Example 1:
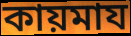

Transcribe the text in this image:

কায়মায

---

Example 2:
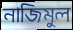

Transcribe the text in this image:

নাজিমুল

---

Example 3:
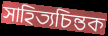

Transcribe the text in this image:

সাহিত্যচিন্তক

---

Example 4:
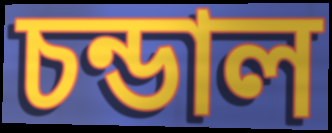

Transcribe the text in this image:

চন্ডাল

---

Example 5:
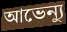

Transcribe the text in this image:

আভেন্যু